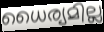
ധൈര്യമില്ല